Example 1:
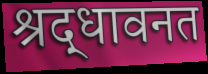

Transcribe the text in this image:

श्रद्धावनत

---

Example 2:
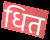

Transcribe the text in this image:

धित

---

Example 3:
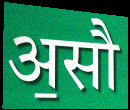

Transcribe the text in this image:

अ॒सौ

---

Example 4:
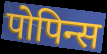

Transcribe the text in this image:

पोपिन्स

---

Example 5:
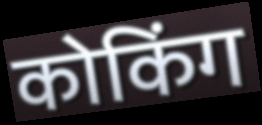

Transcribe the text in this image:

कोकिंग